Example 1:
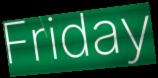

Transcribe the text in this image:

Friday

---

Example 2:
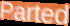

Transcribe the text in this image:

Parted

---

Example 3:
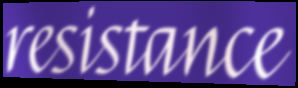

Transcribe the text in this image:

resistance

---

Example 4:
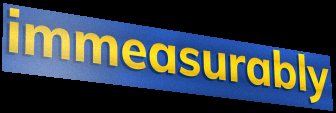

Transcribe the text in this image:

immeasurably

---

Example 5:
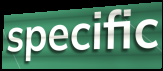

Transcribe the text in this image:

specific